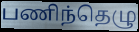
பணிந்தெழு